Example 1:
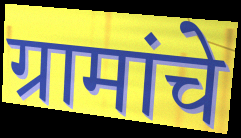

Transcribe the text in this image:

ग्रामांचे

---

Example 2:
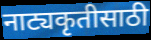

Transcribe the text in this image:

नाट्यकृतीसाठी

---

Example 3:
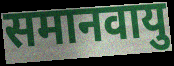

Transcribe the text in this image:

समानवायु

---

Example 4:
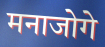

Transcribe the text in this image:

मनाजोगे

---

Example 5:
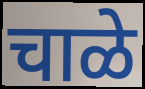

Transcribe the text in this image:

चाळे